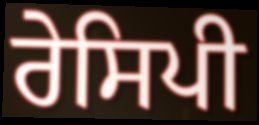
ਰੇਸਿਪੀ